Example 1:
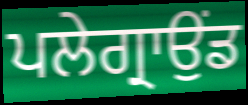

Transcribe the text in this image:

ਪਲੇਗ੍ਰਾਉਂਡ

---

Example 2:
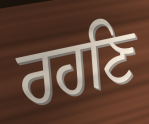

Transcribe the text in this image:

ਰਹਣਿ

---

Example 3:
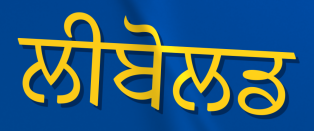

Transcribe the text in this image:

ਲੀਬੋਲਡ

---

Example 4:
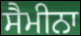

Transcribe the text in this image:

ਸੈਮੀਨਾ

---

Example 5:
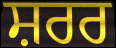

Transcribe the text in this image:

ਸ਼ਰਰ